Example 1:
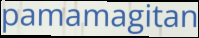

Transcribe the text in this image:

pamamagitan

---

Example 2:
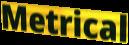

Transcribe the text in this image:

Metrical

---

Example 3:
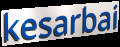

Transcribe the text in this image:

kesarbai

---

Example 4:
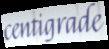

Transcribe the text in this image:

centigrade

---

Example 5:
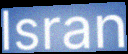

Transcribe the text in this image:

Isran